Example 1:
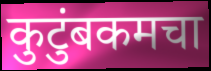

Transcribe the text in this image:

कुटुंबकमचा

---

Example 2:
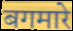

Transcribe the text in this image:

बगमारे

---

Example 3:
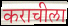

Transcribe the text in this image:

कराचीला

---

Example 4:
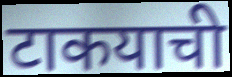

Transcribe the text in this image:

टाकयाची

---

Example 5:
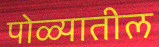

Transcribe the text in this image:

पोळ्यातील